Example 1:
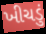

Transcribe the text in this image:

ખીચડું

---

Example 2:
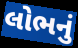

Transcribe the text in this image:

લોભનું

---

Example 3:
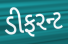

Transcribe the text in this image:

ડીફરન્ટ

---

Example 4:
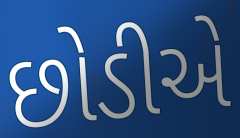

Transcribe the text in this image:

છોડીએ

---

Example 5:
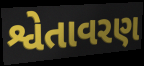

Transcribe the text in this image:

શ્વેતાવરણ